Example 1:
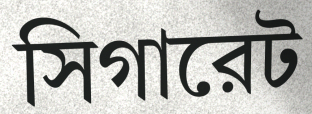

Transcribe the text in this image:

সিগারেট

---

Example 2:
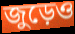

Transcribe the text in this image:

জুড়েও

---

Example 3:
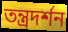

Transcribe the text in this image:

তন্ত্রদর্শন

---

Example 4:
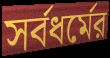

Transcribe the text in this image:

সর্বধর্মের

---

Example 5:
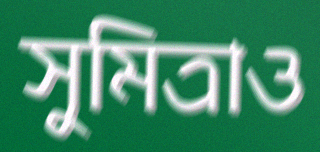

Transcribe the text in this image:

সুমিত্রাও